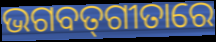
ଭଗବତ୍‌ଗୀତାରେ